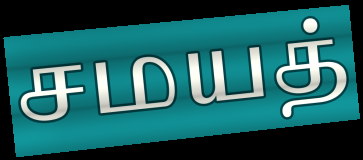
சமயத்